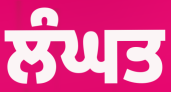
ਲੰਘਤ